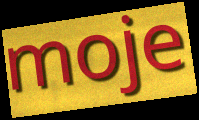
moje